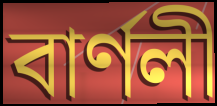
বাৰ্ণলী